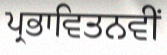
ਪ੍ਰਭਾਵਿਤਨਵੀਂ